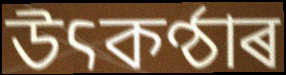
উৎকণ্ঠাৰ